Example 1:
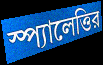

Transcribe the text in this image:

স্প্যালেত্তির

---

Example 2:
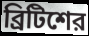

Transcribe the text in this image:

ব্রিটিশের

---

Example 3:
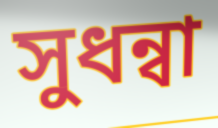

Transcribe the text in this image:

সুধন্বা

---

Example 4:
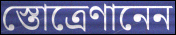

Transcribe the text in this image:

স্তোত্রেণানেন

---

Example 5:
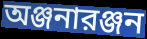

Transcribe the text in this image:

অঞ্জনারঞ্জন